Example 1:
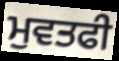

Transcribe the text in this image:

ਮੁਵਤਫੀ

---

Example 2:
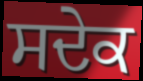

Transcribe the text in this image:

ਸਦੇਕ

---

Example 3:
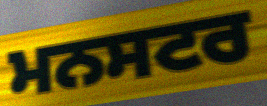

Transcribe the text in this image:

ਮਨਸਟਰ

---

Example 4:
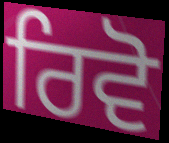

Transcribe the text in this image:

ਰਿਵੋ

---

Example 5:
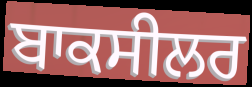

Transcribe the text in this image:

ਬਾਕਸੀਲਰ